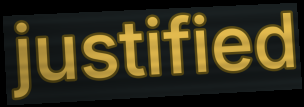
justified